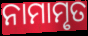
ନାମାମୃତ